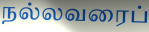
நல்லவரைப்